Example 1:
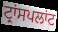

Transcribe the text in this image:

ਟ੍ਰਾਂਸਪਲਾਂਟ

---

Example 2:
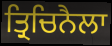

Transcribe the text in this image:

ਤ੍ਰਿਚਿਨੈਲਾ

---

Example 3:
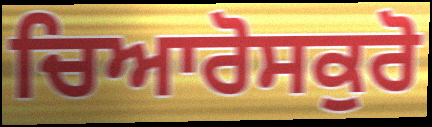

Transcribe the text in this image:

ਚਿਆਰੋਸਕੁਰੋ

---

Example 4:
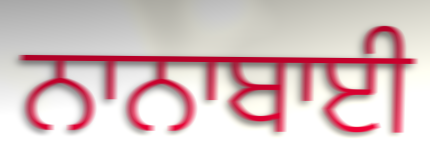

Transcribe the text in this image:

ਨਾਨਾਬਾਈ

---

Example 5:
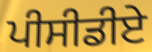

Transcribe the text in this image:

ਪੀਸੀਡੀਏ